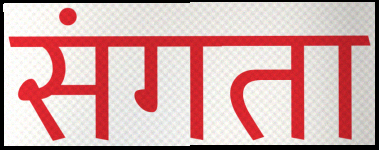
संगता